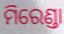
ମିରେଣ୍ଡା